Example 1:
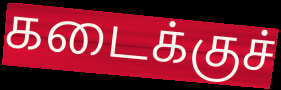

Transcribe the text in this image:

கடைக்குச்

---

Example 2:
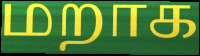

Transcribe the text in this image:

மறாக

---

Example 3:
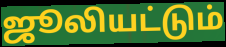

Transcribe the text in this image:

ஜூலியட்டும்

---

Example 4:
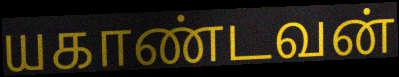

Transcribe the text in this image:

யகாண்டவன்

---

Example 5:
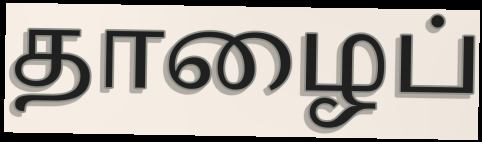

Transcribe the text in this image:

தாழைப்